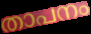
താപനം